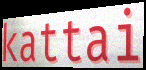
kattai